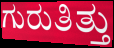
ಗುರುತಿತ್ತು